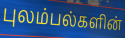
புலம்பல்களின்